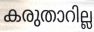
കരുതാറില്ല